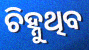
ଚିହ୍ନୁଥିବ